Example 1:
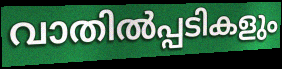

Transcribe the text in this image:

വാതിൽപ്പടികളും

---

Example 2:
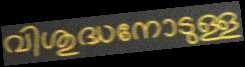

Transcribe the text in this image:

വിശുദ്ധനോടുള്ള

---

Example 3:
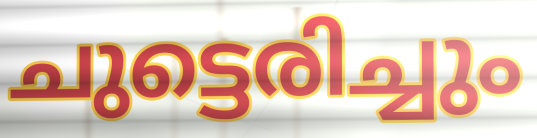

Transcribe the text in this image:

ചുട്ടെരിച്ചും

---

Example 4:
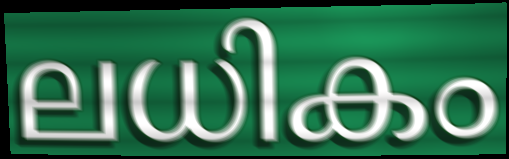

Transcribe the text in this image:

ലധികം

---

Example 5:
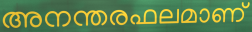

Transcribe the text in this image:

അനന്തരഫലമാണ്